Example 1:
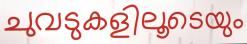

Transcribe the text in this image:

ചുവടുകളിലൂടെയും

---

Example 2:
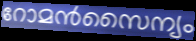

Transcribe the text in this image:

റോമൻസൈന്യം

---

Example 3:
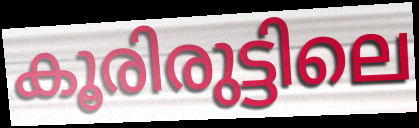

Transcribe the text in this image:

കൂരിരുട്ടിലെ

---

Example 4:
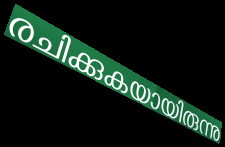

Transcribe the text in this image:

രചിക്കുകയായിരുന്നു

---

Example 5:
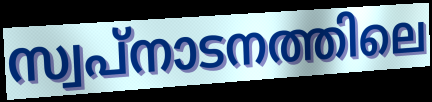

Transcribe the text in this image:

സ്വപ്നാടനത്തിലെ